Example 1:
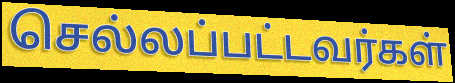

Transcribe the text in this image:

செல்லப்பட்டவர்கள்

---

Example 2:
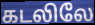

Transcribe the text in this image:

கடலிலே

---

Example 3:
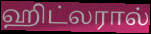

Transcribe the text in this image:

ஹிட்லரால்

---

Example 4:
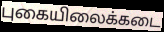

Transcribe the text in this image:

புகையிலைக்கடை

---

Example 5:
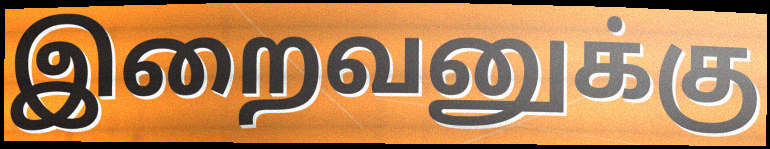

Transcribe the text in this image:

இறைவனுக்கு